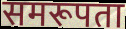
समरूपता